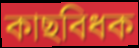
কাছবিধক